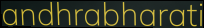
andhrabharati